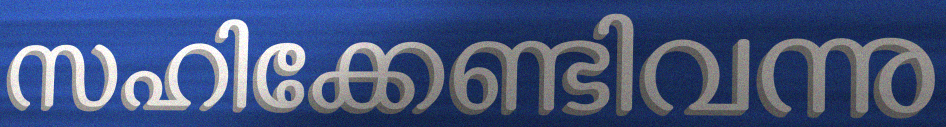
സഹിക്കേണ്ടിവന്നു